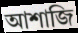
আশাজি